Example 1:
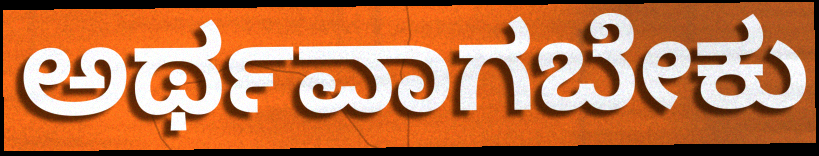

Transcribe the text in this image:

ಅರ್ಥವಾಗಬೇಕು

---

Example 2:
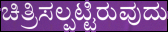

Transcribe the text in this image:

ಚಿತ್ರಿಸಲ್ಪಟ್ಟಿರುವುದು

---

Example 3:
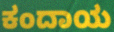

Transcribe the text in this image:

ಕಂದಾಯ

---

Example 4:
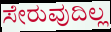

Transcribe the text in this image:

ಸೇರುವುದಿಲ್ಲ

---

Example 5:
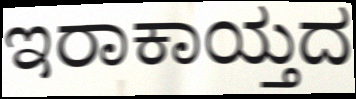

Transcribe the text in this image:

ಇರಾಕಾಯ್ತದ